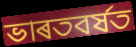
ভাৰতবৰ্ষত